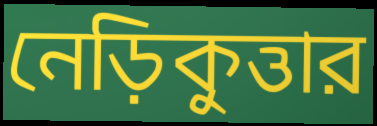
নেড়িকুত্তার